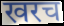
खरच